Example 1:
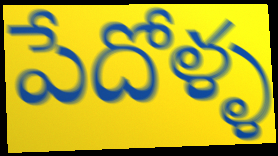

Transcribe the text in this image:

పేదోళ్ళ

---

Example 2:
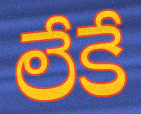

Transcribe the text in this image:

లేకే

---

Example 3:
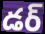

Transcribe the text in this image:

డర్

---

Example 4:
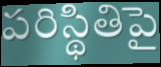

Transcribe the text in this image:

పరిస్థితిపై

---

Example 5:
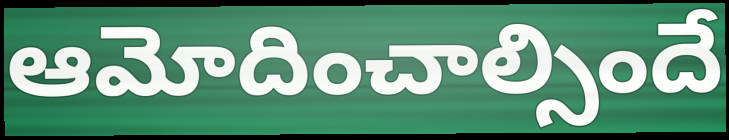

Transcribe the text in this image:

ఆమోదించాల్సిందే